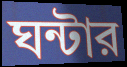
ঘন্টার